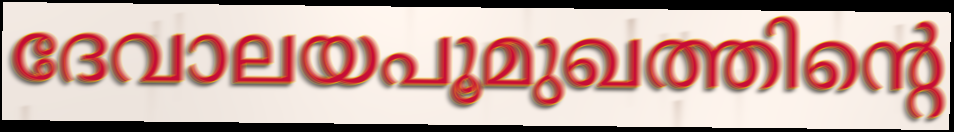
ദേവാലയപൂമുഖത്തിന്റെ